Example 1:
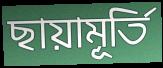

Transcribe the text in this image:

ছায়ামূর্তি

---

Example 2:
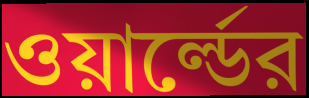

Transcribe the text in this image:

ওয়ার্ল্ডের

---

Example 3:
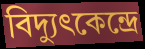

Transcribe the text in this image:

বিদ্যুৎকেন্দ্রে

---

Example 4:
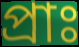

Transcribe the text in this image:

প্রাঃ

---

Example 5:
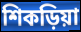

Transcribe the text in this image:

শিকড়িয়া